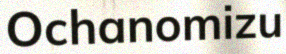
Ochanomizu